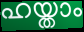
ഹയ്താം